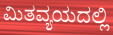
ಮಿತವ್ಯಯದಲ್ಲಿ